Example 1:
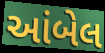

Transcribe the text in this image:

આંબેલ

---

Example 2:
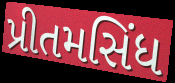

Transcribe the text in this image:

પ્રીતમસિંધ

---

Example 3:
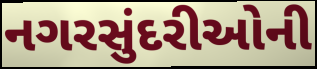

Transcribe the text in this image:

નગરસુંદરીઓની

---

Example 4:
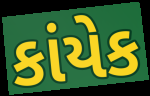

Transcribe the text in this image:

કાંયેક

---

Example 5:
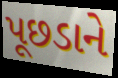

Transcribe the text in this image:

પૂછડાને